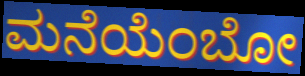
ಮನೆಯೆಂಬೋ